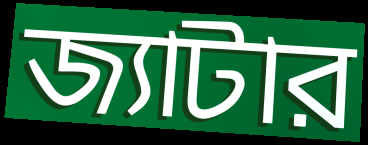
জ্যাটার